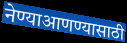
नेण्याआणण्यासाठी